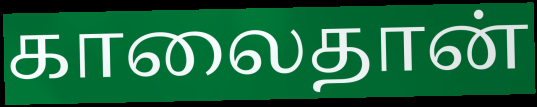
காலைதான்